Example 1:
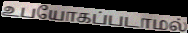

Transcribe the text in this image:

உபயோகப்படாமல்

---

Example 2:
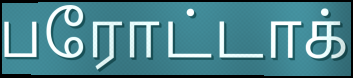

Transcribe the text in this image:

பரோட்டாக்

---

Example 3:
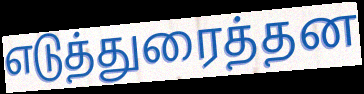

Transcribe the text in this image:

எடுத்துரைத்தன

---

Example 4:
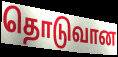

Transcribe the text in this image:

தொடுவான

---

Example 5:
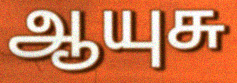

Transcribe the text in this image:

ஆயுசு